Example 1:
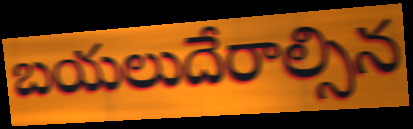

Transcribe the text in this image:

బయలుదేరాల్సిన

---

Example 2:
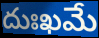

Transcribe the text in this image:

దుఃఖమే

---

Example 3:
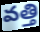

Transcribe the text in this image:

వత్తి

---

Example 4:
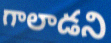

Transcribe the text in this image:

గాలాడని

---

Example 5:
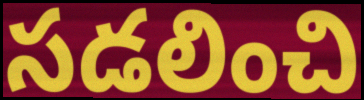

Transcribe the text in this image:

సడలించి